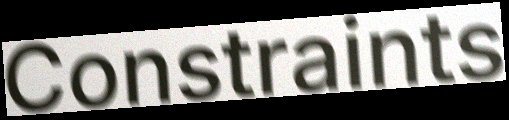
Constraints